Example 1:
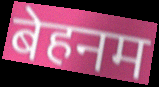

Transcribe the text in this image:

बेहनम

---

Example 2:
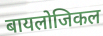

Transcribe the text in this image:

बायलोजिकल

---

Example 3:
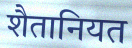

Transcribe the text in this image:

शैतानियत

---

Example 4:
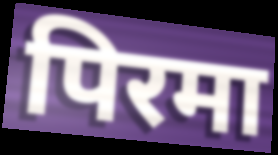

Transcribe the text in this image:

पिरमा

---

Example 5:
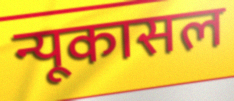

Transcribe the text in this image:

न्यूकासल